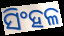
ସିଂହଳ